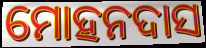
ମୋହନଦାସ